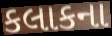
કલાકના